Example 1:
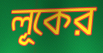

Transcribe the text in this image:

লূকের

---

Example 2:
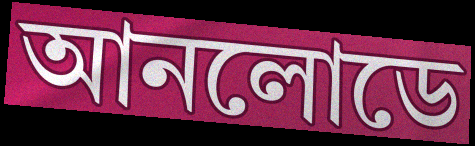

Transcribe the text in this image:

আনলোডে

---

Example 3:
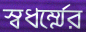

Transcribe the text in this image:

স্বধর্ম্মের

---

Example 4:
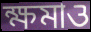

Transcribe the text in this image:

ক্ষমাও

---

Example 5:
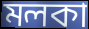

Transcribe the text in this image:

মলকা